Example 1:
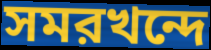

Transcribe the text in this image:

সমরখন্দে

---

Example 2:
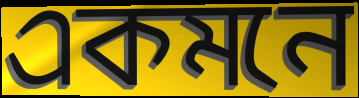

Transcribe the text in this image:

একমনে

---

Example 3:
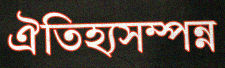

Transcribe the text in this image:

ঐতিহ্যসম্পন্ন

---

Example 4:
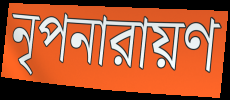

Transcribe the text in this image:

নৃপনারায়ণ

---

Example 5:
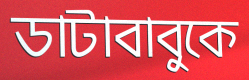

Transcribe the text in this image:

ডাটাবাবুকে